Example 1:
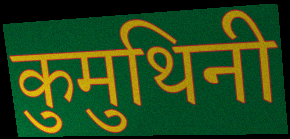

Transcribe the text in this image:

कुमुथिनी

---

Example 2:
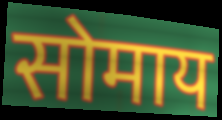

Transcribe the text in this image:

सोमाय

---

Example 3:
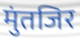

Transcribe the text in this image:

मुंतजिर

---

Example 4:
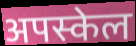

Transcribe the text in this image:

अपस्केल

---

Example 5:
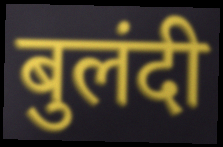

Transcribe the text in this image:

बुलंदी